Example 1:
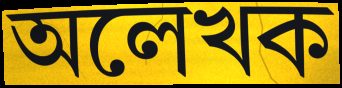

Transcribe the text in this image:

অলেখক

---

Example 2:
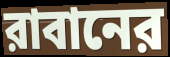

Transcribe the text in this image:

রাবানের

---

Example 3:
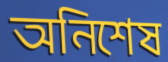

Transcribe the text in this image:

অনিশেষ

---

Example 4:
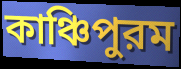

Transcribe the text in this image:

কাঞ্চিপুরম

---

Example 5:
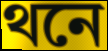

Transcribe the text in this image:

থনে